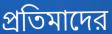
প্রতিমাদের